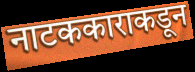
नाटककाराकडून